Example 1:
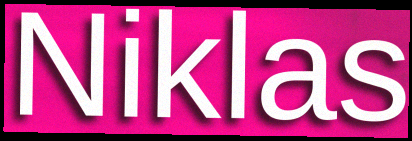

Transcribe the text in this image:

Niklas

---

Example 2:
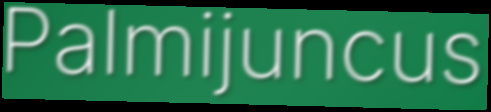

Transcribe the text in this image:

Palmijuncus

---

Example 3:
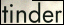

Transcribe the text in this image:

tinder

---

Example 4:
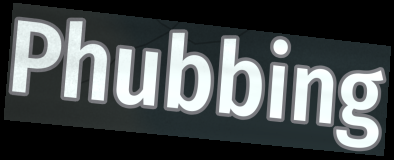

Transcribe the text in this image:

Phubbing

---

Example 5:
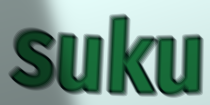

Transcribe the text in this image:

suku